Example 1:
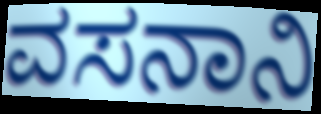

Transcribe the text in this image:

ವಸನಾನಿ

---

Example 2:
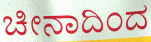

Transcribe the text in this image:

ಚೀನಾದಿಂದ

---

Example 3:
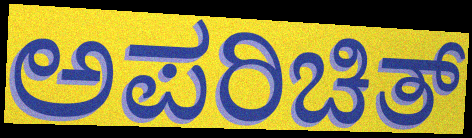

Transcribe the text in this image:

ಅಪರಿಚಿತ್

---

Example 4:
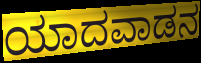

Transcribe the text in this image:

ಯಾದವಾಡನ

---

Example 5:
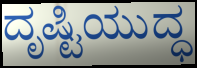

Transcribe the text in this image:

ದೃಷ್ಟಿಯುದ್ಧ